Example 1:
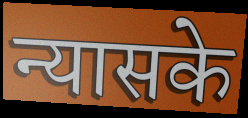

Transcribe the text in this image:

न्यासके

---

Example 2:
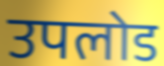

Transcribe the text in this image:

उपलोड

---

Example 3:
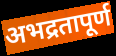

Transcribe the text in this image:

अभद्रतापूर्ण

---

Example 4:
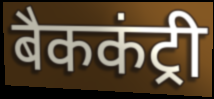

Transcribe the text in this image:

बैककंट्री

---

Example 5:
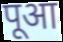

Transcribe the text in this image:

पूआ